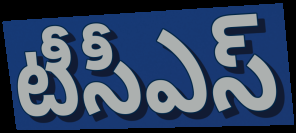
టీసీఎస్